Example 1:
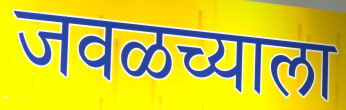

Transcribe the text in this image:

जवळच्याला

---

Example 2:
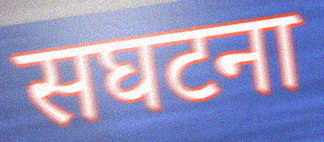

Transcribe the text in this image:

सघटना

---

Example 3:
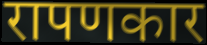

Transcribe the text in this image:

रापणकार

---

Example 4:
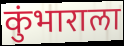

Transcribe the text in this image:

कुंभाराला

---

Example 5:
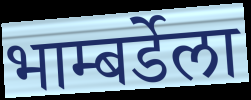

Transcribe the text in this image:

भाम्बर्डेला